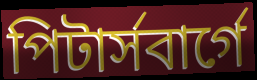
পিটার্সবার্গে